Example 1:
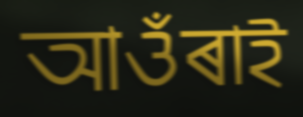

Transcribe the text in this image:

আওঁৰাই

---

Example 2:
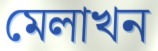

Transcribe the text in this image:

মেলাখন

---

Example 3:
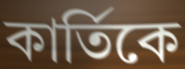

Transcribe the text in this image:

কাৰ্তিকে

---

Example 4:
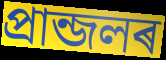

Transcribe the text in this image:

প্ৰান্জলৰ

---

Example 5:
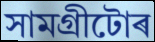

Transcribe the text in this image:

সামগ্ৰীটোৰ